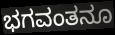
ಭಗವಂತನೂ